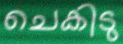
ചെകിടു